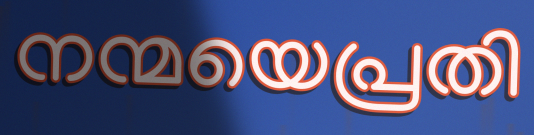
നന്മയെപ്രതി